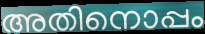
അതിനൊപ്പം